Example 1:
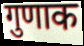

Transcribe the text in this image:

गुणाक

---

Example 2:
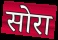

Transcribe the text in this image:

सोरा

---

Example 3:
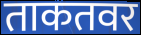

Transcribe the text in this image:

ताकतवर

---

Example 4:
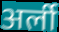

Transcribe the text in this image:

अर्ली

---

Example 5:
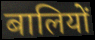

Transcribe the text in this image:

बालियों